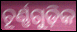
ଚୂର୍ଣ୍ଣଗୁଡ଼ିକ